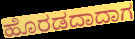
ಹೊರಡದಾದಾಗ